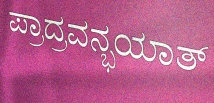
ಪ್ರಾದ್ರವನ್ಭಯಾತ್